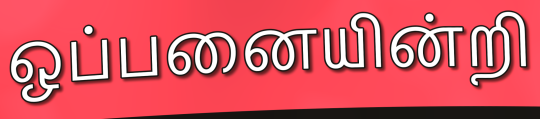
ஒப்பனையின்றி